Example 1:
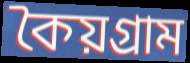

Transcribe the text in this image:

কৈয়গ্রাম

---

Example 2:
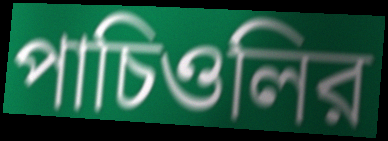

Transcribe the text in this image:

পাচিওলির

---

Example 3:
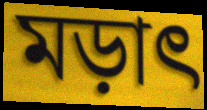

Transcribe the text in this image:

মড়াৎ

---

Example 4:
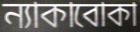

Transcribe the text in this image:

ন্যাকাবোকা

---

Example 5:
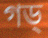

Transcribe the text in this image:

গড্